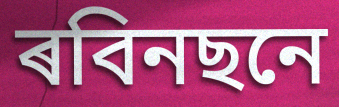
ৰবিনছনে